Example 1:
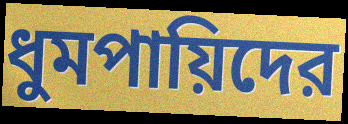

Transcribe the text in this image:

ধুমপায়িদের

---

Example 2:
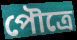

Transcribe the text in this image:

পৌত্রে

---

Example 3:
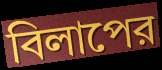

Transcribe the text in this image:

বিলাপের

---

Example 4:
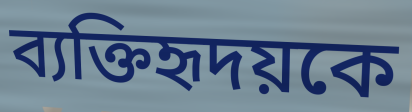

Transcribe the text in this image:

ব্যক্তিহৃদয়কে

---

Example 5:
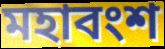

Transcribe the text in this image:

মহাবংশ